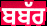
ਬਬੱਰ